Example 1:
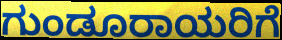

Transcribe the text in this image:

ಗುಂಡೂರಾಯರಿಗೆ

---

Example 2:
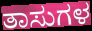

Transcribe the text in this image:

ತಾಸುಗಳ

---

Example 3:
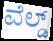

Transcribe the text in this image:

ವೆಲ್ಡ್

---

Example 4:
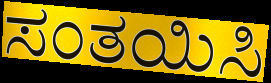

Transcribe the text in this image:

ಸಂತಯಿಸಿ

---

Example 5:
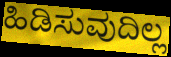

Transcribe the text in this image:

ಹಿಡಿಸುವುದಿಲ್ಲ